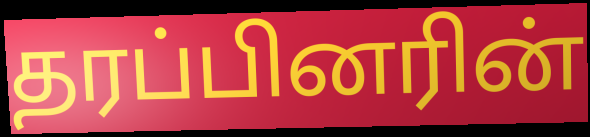
தரப்பினரின்